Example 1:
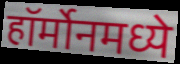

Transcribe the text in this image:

हॉर्मोनमध्ये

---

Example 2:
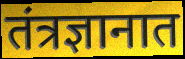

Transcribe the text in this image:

तंत्रज्ञानात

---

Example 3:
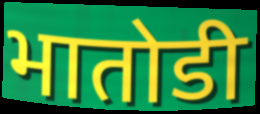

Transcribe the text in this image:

भातोडी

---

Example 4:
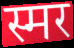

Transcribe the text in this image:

स्मर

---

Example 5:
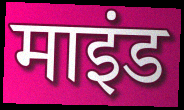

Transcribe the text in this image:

माइंड